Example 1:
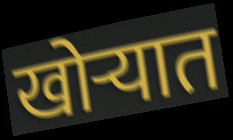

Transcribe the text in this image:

खोर्‍यात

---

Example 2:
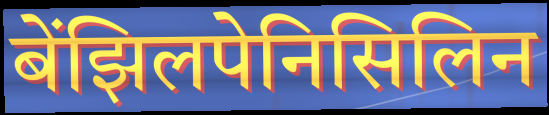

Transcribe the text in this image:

बेंझिलपेनिसिलिन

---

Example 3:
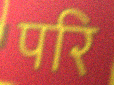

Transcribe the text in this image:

परि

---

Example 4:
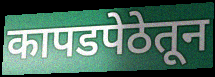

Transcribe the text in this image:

कापडपेठेतून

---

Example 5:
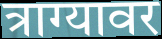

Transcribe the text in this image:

त्राग्यावर